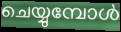
ചെയ്യുമ്പോൾ